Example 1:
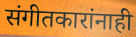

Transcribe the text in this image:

संगीतकारांनाही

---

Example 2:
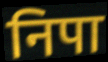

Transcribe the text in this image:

निपा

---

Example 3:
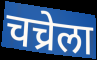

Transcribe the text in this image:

चच्रेला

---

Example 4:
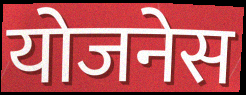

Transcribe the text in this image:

योजनेस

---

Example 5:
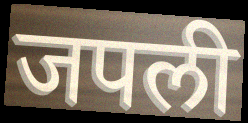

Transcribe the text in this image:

जपली